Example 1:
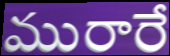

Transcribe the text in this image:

మురారే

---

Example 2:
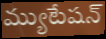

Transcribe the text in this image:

మ్యుటేషన్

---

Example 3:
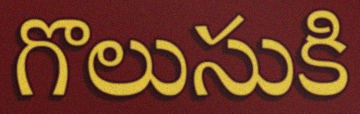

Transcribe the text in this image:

గొలుసుకి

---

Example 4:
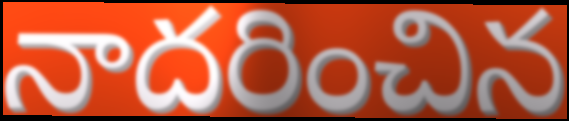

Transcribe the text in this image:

నాదరించిన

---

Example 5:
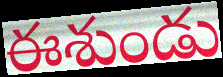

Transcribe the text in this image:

ఈశుండు